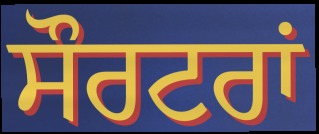
ਸੌਰਟਰਾਂ